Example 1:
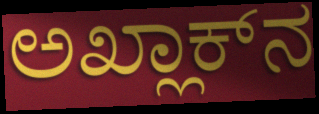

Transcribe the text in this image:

ಅಖ್ಲಾಕ್‍ನ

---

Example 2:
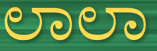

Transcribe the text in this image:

ಲಾಲಾ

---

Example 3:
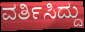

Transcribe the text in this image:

ವರ್ತಿಸಿದ್ದು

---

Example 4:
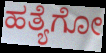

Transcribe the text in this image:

ಹತ್ಯೆಗೋ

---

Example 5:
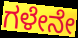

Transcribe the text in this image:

ಗಳೇನೇ